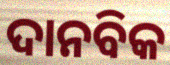
ଦାନବିକ